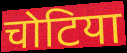
चोटिया